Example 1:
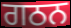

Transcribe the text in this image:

ਗਠਨ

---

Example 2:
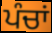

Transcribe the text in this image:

ਪੰਚਾਂ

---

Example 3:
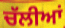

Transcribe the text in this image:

ਚੱਲੀਆਂ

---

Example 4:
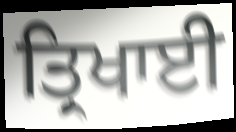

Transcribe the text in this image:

ਤ੍ਰਿਖਾਈ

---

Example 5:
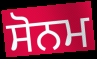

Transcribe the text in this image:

ਸੋਨਮ